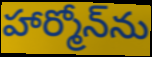
హార్మోన్‌ను